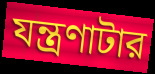
যন্ত্রণাটার